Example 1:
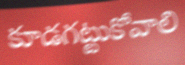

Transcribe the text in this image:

కూడగట్టుకోవాలి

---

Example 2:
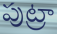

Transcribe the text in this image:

పుట్రా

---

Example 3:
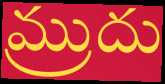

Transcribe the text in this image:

మ్రుదు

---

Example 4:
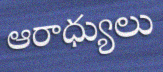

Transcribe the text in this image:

ఆరాధ్యులు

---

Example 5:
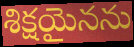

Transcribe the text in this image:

శిక్షయైనను